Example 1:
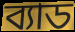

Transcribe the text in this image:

ব্যাড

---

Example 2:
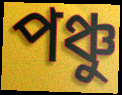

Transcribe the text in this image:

পঞ্চু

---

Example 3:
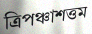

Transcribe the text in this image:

ত্রিপঞ্চাশত্তম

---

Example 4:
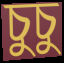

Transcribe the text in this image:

চুচু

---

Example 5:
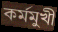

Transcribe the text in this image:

কর্মমুখী